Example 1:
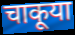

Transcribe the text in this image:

चाकूया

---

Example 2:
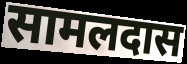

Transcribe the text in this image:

सामलदास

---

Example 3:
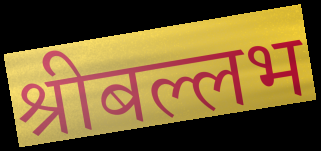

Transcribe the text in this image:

श्रीबल्लभ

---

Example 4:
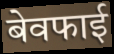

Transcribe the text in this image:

बेवफाई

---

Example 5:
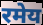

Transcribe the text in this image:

रमेय